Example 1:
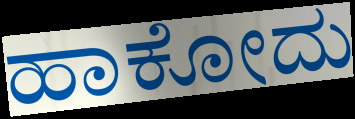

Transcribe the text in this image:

ಹಾಕೋದು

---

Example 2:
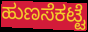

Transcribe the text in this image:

ಹುಣಸೆಕಟ್ಟೆ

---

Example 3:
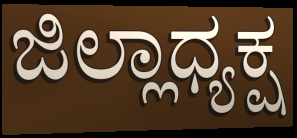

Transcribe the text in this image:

ಜಿಲ್ಲಾಧ್ಯಕ್ಷ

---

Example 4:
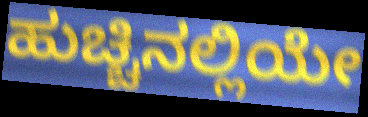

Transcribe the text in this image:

ಹುಚ್ಚಿನಲ್ಲಿಯೇ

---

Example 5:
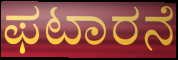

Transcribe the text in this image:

ಫಟಾರನೆ